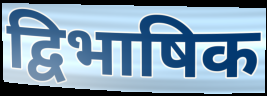
द्विभाषिक